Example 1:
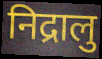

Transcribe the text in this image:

निद्रालु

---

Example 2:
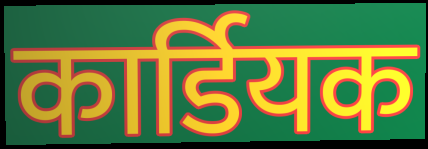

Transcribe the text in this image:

कार्डियक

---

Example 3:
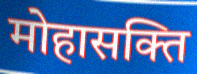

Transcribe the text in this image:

मोहासक्ति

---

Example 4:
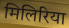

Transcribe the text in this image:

मिलिरिया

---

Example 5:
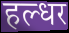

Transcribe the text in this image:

हल्धर